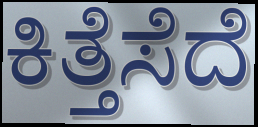
ಕಿತ್ತೆಸೆದೆ